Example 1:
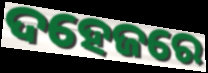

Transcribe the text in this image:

ଦହେଜରେ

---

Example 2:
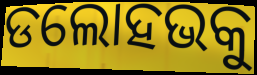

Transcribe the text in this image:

ଡଲୋହଭକୁ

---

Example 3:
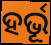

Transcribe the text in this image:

ହର୍ଭୂ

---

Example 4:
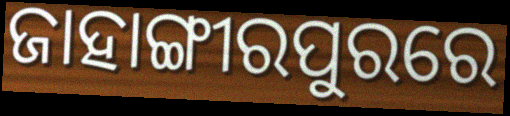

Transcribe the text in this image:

ଜାହାଙ୍ଗୀରପୁରରେ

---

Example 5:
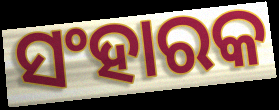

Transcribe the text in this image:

ସଂହାରକ